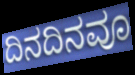
ದಿನದಿನವೂ